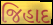
જિહાદ